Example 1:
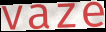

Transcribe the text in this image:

vaze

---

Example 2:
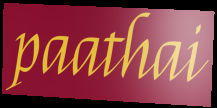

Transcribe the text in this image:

paathai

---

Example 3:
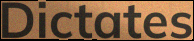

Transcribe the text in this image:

Dictates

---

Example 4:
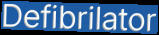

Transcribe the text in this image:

Defibrilator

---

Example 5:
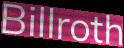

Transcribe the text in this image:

Billroth